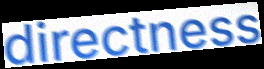
directness